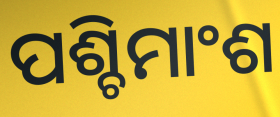
ପଶ୍ଚିମାଂଶ